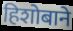
हिशोबाने